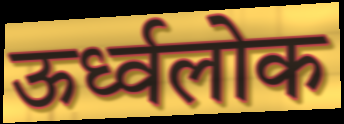
ऊर्ध्वलोक